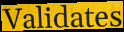
Validates